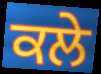
ਕਲੇ